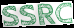
SSRC